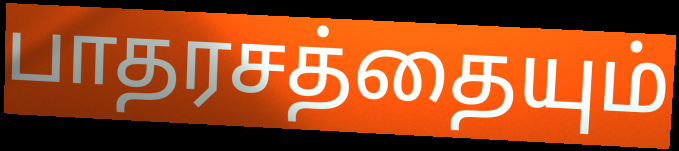
பாதரசத்தையும்